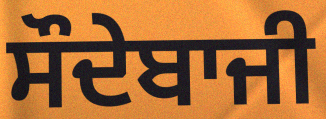
ਸੌਦੇਬਾਜੀ